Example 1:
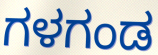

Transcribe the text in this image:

ಗಳಗಂಡ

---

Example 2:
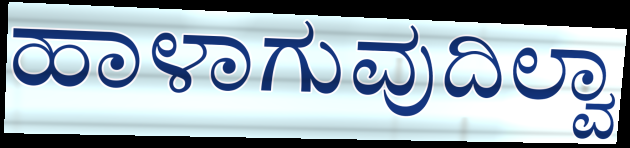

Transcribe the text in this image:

ಹಾಳಾಗುವುದಿಲ್ವಾ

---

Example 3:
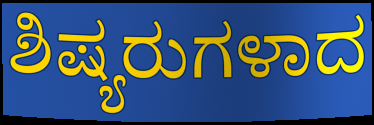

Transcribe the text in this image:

ಶಿಷ್ಯರುಗಳಾದ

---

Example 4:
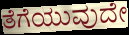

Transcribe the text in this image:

ತೆಗೆಯುವುದೇ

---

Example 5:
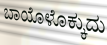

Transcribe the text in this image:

ಬಾಯೊಳೊಕ್ಕುದು